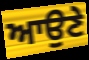
ਆਉਣੇ